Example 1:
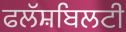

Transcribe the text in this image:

ਫਲੱਸ਼ਬਿਲਟੀ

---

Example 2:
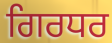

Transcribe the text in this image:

ਗਿਰਧਰ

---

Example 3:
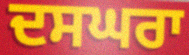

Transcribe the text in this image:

ਦਸਘਰਾ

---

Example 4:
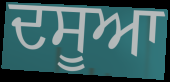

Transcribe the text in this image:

ਦਸੂਆ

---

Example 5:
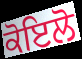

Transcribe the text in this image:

ਕੋਇਲੋ